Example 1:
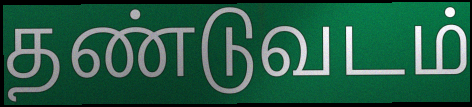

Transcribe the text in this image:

தண்டுவடம்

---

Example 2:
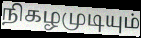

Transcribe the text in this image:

நிகழமுடியும்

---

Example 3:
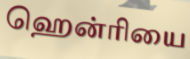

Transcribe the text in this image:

ஹென்ரியை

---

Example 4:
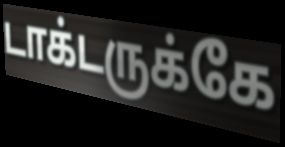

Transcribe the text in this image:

டாக்டருக்கே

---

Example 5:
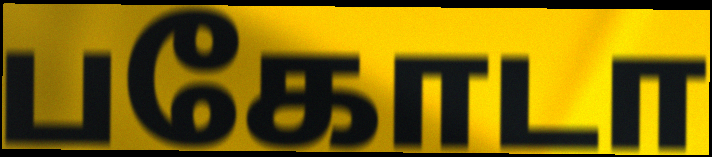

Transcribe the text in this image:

பகோடா